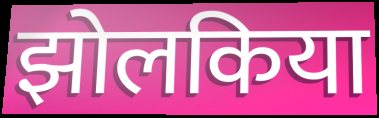
झोलकिया